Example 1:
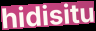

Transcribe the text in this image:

hidisitu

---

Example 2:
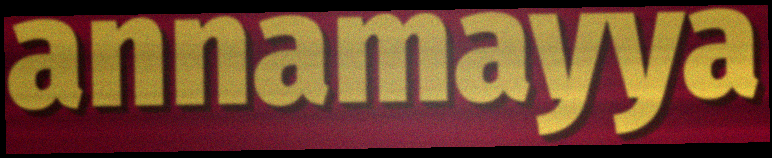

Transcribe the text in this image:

annamayya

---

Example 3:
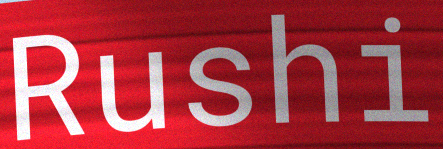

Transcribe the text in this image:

Rushi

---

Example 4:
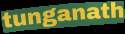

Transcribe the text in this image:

tunganath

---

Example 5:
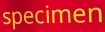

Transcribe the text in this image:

specimen